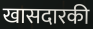
खासदारकी